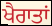
ਖੈਰਾਤਾਂ